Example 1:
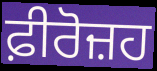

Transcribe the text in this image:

ਫ਼ੀਰੋਜ਼ਹ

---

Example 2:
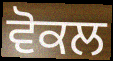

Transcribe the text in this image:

ਵੋਕਲ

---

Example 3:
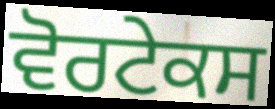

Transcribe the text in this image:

ਵੋਰਟੇਕਸ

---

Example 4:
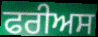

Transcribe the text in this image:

ਫਰੀਅਸ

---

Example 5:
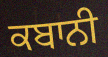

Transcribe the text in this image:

ਕਬਾਨੀ